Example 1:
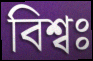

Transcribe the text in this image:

বিশ্বঃ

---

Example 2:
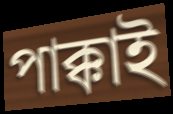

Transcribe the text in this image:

পাক্কাই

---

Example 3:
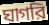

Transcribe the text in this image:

ঘাগরি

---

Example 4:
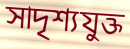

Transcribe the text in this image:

সাদৃশ্যযুক্ত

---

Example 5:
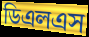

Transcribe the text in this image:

ডিএলএস